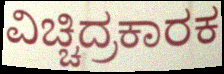
ವಿಚ್ಚಿದ್ರಕಾರಕ